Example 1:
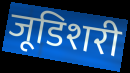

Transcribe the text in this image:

जूडिशरी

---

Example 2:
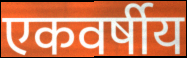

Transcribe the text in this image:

एकवर्षीय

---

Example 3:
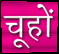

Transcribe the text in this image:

चूहों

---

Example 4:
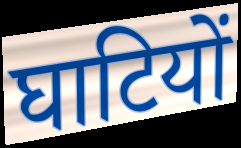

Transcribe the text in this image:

घाटियों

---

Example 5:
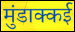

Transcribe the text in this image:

मुंडाक्कई